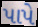
પાપે